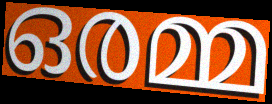
ഒരമ്മ